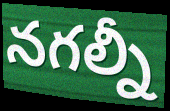
నగల్నీ